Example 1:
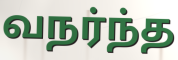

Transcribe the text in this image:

வநர்ந்த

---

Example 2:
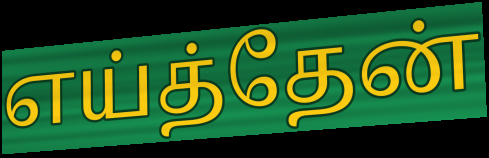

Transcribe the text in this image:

எய்த்தேன்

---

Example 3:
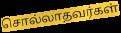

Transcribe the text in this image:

சொல்லாதவர்கள்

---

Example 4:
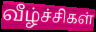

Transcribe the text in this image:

வீழ்ச்சிகள்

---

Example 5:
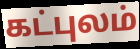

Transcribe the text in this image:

கட்புலம்